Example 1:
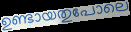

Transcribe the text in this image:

ഉണ്ടായതുപോലെ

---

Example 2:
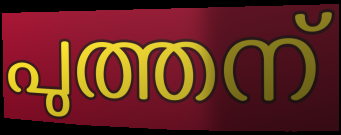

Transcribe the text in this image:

പുത്തന്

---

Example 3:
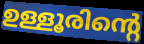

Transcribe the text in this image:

ഉള്ളൂരിന്റെ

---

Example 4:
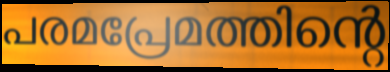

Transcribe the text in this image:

പരമപ്രേമത്തിന്റെ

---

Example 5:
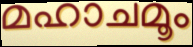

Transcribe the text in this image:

മഹാചമൂം